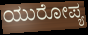
ಯುರೋಪ್ಯ